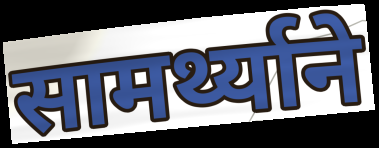
सामर्थ्याने